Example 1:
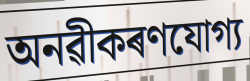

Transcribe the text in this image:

অনৱীকৰণযোগ্য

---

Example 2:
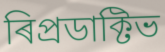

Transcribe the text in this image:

ৰিপ্ৰডাক্টিভ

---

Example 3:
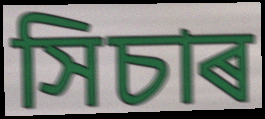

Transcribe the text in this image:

সিচাৰ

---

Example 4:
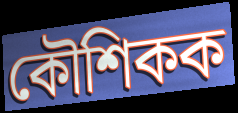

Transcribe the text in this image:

কৌশিকক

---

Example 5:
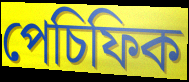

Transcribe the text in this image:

পেচিফিক